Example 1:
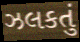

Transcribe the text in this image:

ઝલકતું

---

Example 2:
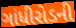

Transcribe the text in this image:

ગાંધીરોડની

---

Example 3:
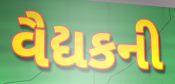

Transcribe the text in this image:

વૈદ્યકની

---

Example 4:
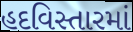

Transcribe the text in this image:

હદવિસ્તારમાં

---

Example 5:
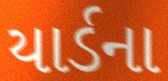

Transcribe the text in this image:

યાર્ડના